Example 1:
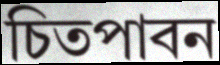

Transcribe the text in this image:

চিতপাবন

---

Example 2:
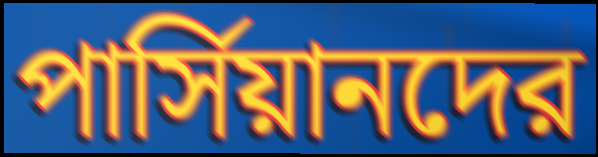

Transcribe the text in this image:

পার্সিয়ানদের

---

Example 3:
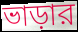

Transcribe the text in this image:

ভাড়ার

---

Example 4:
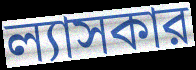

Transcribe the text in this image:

ল্যাসকার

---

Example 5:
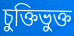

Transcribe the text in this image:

চুক্তিভুক্ত